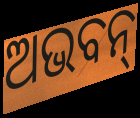
ଅଭବନ୍